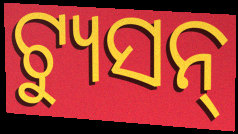
ଟ୍ୟୁସନ୍